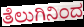
ತೆಲುಗಿನಿಂದ